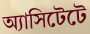
অ্যাসিটেটে